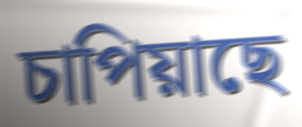
চাপিয়াছে